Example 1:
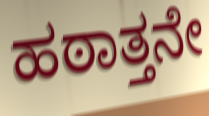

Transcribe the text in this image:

ಹಠಾತ್ತನೇ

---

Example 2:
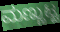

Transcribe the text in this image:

ಮಣ್ಣುಟ್ಟ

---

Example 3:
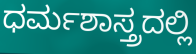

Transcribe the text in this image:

ಧರ್ಮಶಾಸ್ತ್ರದಲ್ಲಿ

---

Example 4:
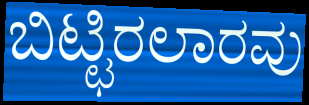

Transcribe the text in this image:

ಬಿಟ್ಟಿರಲಾರವು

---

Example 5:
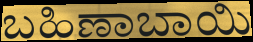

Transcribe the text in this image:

ಬಹಿಣಾಬಾಯಿ